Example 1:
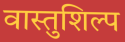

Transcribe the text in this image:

वास्तुशिल्प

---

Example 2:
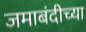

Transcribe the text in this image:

जमाबंदीच्या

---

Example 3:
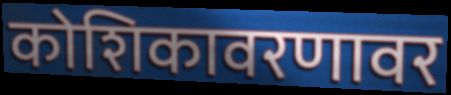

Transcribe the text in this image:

कोशिकावरणावर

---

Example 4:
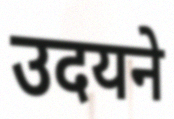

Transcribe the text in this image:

उदयने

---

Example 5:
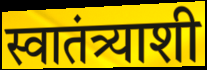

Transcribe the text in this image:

स्वातंत्र्याशी